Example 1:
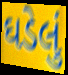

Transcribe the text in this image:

ઘડેલું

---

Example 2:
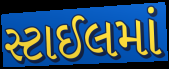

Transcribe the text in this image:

સ્ટાઈલમાં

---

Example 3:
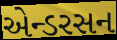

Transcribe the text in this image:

એન્ડરસન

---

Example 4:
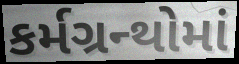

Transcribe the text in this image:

કર્મગ્રન્થોમાં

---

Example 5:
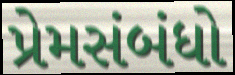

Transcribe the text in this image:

પ્રેમસંબંધો